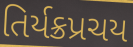
તિર્યક્રપ્રચય